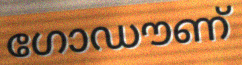
ഗോഡൗണ്